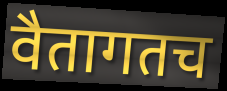
वैतागतच